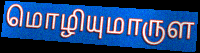
மொழியுமாருள